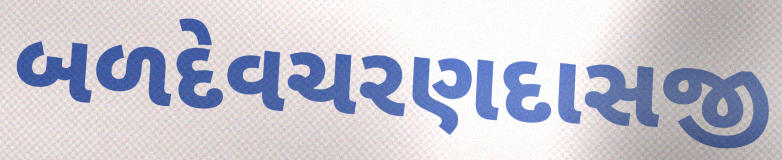
બળદેવચરણદાસજી